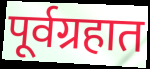
पूर्वग्रहात